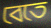
বেতে